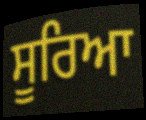
ਸੂਰਿਆ